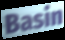
Basin